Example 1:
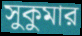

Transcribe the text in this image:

সুকুমার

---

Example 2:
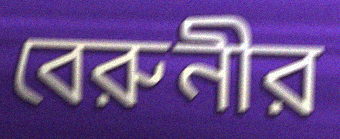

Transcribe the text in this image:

বেরুনীর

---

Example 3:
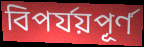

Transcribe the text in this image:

বিপর্যয়পূর্ণ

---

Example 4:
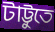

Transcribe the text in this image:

টাট্টুতে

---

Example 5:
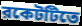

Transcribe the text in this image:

রকেটটিতে